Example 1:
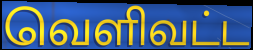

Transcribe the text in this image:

வெளிவட்ட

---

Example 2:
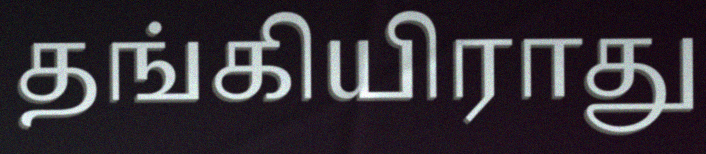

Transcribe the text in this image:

தங்கியிராது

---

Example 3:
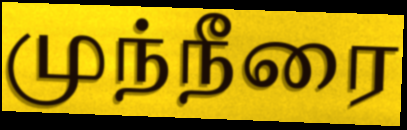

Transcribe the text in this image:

முந்நீரை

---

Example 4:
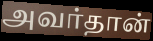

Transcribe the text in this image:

அவர்தான்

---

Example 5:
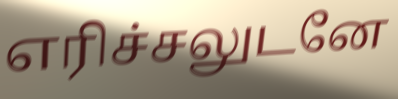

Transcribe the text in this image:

எரிச்சலுடனே